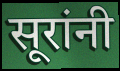
सूरांनी